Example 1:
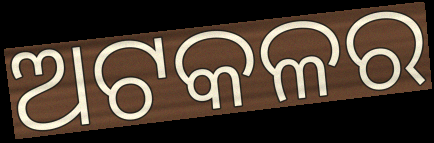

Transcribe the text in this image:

ଅଟକଳର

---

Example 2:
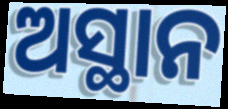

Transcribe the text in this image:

ଅସ୍ଥାନ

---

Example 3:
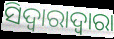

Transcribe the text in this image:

ସିଦ୍ୱାରାଦ୍ୱାରା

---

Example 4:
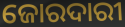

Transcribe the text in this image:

ଜୋରଦାରୀ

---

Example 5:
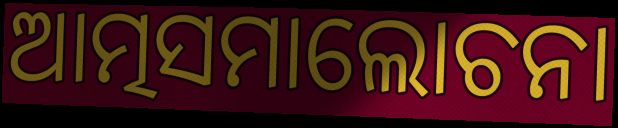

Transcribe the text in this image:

ଆତ୍ମସମାଲୋଚନା